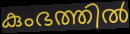
കുംഭത്തിൽ